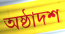
অষ্ঠাদশ